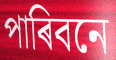
পাৰিবনে